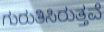
ಗುರುತಿಸಿರುತ್ತವೆ